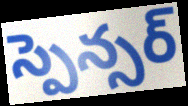
స్పెన్సర్